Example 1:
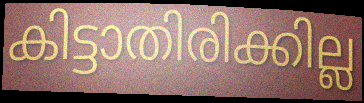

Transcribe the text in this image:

കിട്ടാതിരിക്കില്ല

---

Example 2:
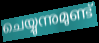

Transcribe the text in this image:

ചെയ്യുന്നുമുണ്ട്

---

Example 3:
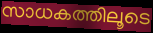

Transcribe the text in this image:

സാധകത്തിലൂടെ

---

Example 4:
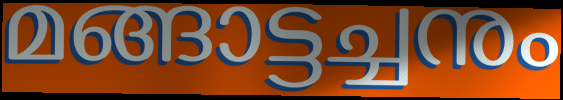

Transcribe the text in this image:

മങ്ങാട്ടച്ചനും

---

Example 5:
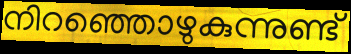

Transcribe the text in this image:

നിറഞ്ഞൊഴുകുന്നുണ്ട്